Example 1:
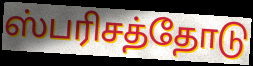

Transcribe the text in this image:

ஸ்பரிசத்தோடு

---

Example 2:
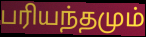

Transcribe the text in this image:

பரியந்தமும்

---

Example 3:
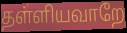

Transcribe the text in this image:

தள்ளியவாறே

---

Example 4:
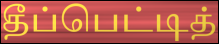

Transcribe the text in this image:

தீப்பெட்டித்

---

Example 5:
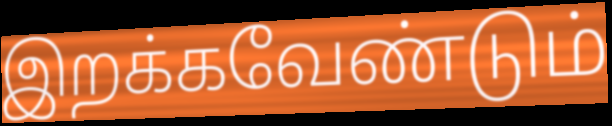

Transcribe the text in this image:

இறக்கவேண்டும்